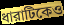
ধারাটিকেও